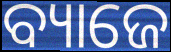
ବ୍ୟାଜେ